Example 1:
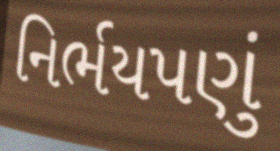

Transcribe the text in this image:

નિર્ભયપણું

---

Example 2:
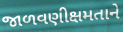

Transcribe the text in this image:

જાળવણીક્ષમતાને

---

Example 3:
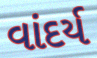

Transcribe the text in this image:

વાંદર્ય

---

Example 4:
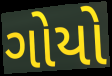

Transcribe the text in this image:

ગોયો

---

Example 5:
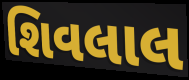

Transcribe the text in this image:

શિવલાલ